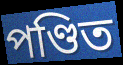
পণ্ডিত